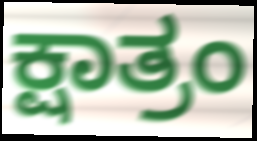
ಕ್ಷಾತ್ರಂ